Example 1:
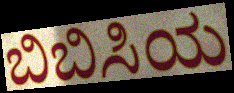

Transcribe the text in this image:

ಬಿಬಿಸಿಯ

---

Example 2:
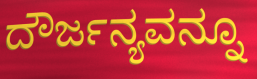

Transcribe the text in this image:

ದೌರ್ಜನ್ಯವನ್ನೂ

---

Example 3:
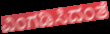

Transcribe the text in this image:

ವಿಂಗಡಿಸಿದಂತೆ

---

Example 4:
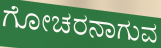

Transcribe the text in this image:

ಗೋಚರನಾಗುವ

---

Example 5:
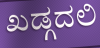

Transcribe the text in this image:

ಖಡ್ಗದಲಿ